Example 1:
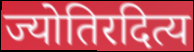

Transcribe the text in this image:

ज्योतिरदित्य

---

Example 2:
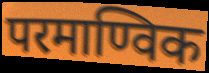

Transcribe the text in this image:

परमाण्विक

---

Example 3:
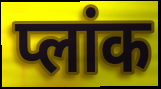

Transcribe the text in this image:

प्लांक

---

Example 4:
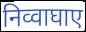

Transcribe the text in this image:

निव्वाघाए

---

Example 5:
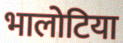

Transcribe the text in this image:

भालोटिया